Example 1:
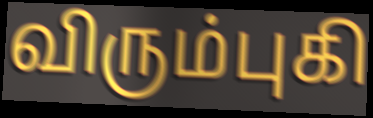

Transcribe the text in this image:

விரும்புகி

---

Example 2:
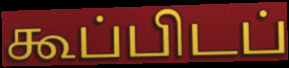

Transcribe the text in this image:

கூப்பிடப்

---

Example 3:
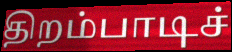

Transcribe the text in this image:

திறம்பாடிச்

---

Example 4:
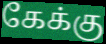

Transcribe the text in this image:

கேக்கு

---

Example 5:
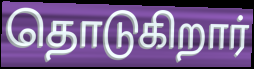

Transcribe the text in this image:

தொடுகிறார்